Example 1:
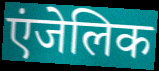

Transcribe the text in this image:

एंजेलिक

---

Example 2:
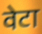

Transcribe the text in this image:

वेटा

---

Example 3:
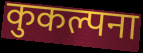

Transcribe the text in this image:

कुकल्पना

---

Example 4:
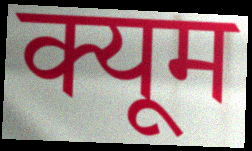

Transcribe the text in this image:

क्यूम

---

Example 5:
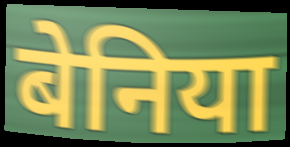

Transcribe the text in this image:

बेनिया